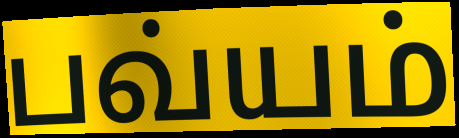
பவ்யம்